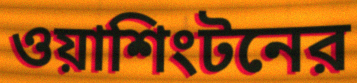
ওয়াশিংটনের